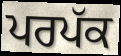
ਪਰਪੱਕ